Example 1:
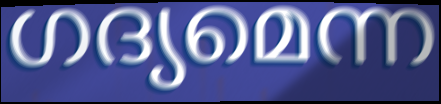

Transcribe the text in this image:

ഗദ്യമെന്ന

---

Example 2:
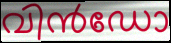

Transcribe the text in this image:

വിൻഡോ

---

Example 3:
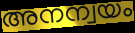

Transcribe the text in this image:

അനന്വയം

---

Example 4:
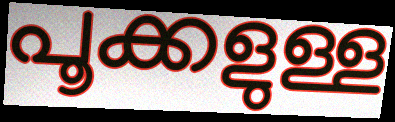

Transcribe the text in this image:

പൂക്കളുള്ള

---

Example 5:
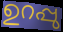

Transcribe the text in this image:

ഉറപ്പു